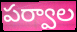
పర్వాల